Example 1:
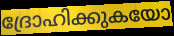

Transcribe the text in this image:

ദ്രോഹിക്കുകയോ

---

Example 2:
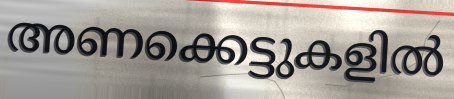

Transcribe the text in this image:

അണക്കെട്ടുകളിൽ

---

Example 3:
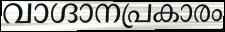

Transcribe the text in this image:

വാഗ്ദാനപ്രകാരം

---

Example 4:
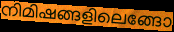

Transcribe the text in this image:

നിമിഷങ്ങളിലെങ്ങോ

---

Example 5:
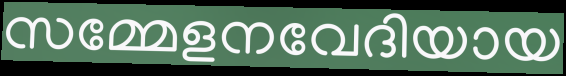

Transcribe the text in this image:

സമ്മേളനവേദിയായ